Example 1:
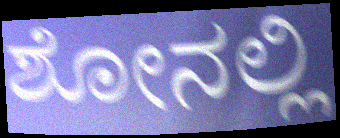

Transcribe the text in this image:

ಶೋನಲ್ಲಿ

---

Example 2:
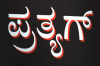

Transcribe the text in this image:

ಪ್ರತ್ಯಗ್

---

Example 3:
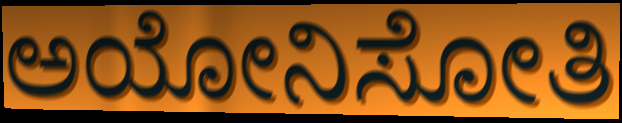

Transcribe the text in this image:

ಅಯೋನಿಸೋತಿ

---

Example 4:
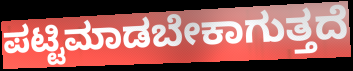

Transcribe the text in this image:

ಪಟ್ಟಿಮಾಡಬೇಕಾಗುತ್ತದೆ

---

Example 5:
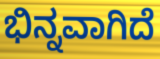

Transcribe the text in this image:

ಭಿನ್ನವಾಗಿದೆ